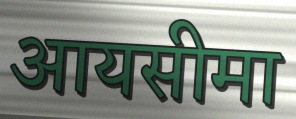
आयसीमा